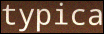
typica